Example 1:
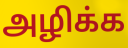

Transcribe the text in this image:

அழிக்க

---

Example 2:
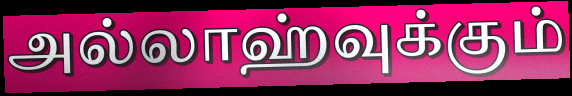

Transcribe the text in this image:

அல்லாஹ்வுக்கும்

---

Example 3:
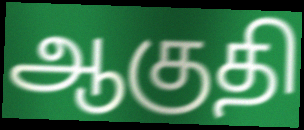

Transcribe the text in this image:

ஆகுதி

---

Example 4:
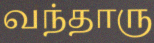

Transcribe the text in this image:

வந்தாரு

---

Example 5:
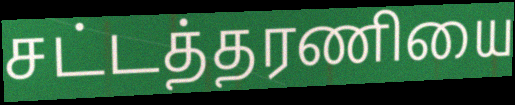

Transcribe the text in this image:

சட்டத்தரணியை